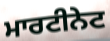
ਮਾਰਟੀਨੇਟ